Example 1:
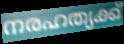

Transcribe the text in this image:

നരഹത്യക്ക്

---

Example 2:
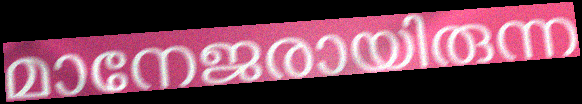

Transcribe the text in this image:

മാനേജരായിരുന്ന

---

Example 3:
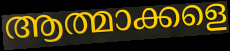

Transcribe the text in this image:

ആത്മാക്കളെ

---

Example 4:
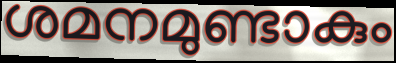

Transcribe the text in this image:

ശമനമുണ്ടാകും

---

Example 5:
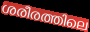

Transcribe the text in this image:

ശരീരത്തിലെ